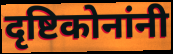
दृष्टिकोनांनी